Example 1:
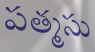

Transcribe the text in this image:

పత్మసు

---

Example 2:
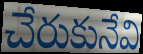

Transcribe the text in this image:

చేరుకునేవి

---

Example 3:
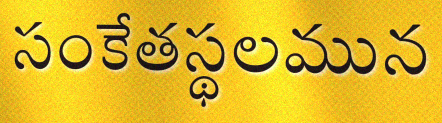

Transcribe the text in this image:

సంకేతస్థలమున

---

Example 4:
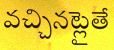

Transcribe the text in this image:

వచ్చినట్లైతే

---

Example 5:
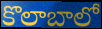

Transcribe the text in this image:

కొలాబాలో